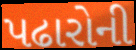
પઢારોની